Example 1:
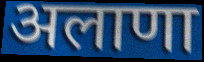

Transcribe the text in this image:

अलाणा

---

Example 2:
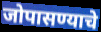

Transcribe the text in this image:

जोपासण्याचे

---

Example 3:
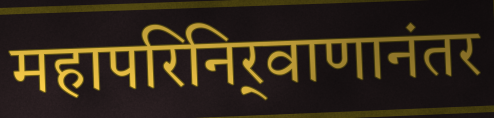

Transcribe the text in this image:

महापरिनिर्वाणानंतर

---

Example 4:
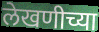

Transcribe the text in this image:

लेखणीच्या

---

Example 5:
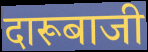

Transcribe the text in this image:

दारूबाजी